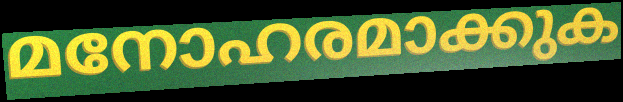
മനോഹരമാക്കുക